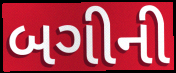
બગીની